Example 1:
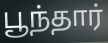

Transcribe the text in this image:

பூந்தார்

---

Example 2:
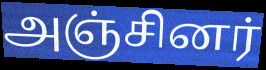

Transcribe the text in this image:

அஞ்சினர்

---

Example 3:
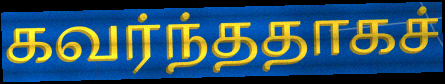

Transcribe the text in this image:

கவர்ந்ததாகச்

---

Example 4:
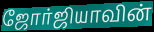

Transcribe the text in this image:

ஜோர்ஜியாவின்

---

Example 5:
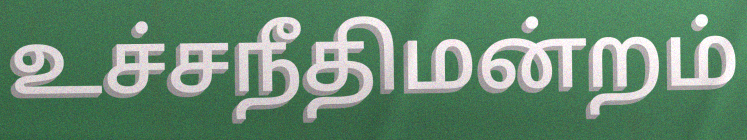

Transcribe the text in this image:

உச்சநீதிமன்றம்